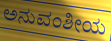
ಅನುವಂಶೀಯ